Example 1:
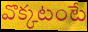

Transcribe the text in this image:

వొక్కటంటే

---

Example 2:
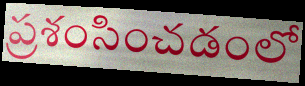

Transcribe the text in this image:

ప్రశంసించడంలో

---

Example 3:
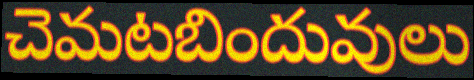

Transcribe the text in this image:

చెమటబిందువులు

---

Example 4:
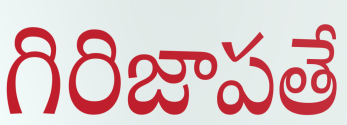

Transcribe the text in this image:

గిరిజాపతే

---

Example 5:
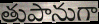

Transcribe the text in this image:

తుపానుగా